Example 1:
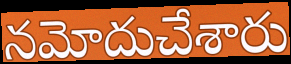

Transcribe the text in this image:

నమోదుచేశారు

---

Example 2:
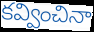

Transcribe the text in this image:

కవ్వించినా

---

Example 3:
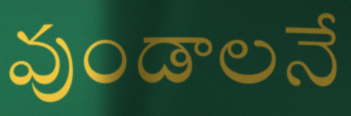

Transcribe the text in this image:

వుండాలనే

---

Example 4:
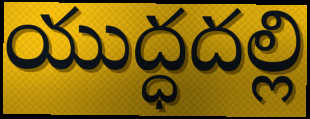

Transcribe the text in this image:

యుద్ధదల్లి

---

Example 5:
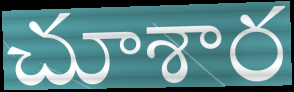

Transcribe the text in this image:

చూశార